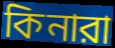
কিনারা